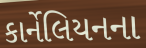
કાર્નેલિયનના